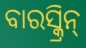
ବାରସ୍କ୍ରିନ୍